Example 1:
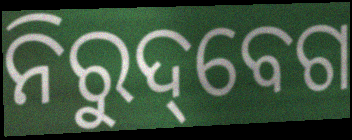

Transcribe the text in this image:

ନିରୁଦ୍‌ବେଗ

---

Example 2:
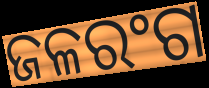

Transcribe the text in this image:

ଜଳରଂଗ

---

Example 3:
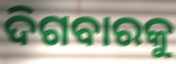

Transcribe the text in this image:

ଦିଗବାରକୁ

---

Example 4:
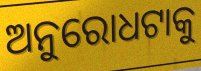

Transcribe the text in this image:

ଅନୁରୋଧଟାକୁ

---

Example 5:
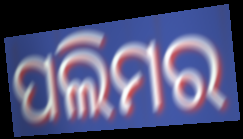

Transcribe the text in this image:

ପଲିମର